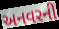
અનવરની